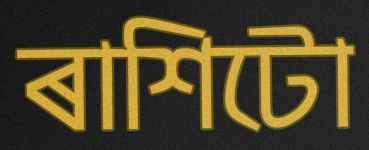
ৰাশিটো